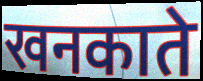
खनकाते